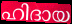
ഹിദായ